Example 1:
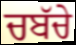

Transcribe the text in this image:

ਚਬੱਚੇ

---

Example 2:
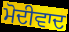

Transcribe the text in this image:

ਮੋਦੀਵਾਦ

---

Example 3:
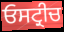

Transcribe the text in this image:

ਓਸਟ੍ਰੀਚ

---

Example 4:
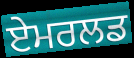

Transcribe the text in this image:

ਏਮਰਲਡ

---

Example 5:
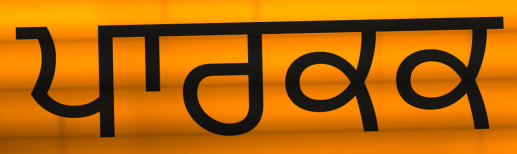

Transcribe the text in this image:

ਪਾਰਕਕ